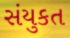
સંયુકત